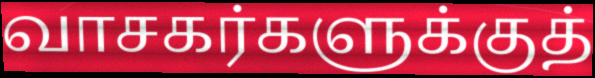
வாசகர்களுக்குத்